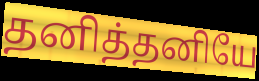
தனித்தனியே